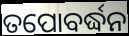
ତପୋବର୍ଦ୍ଧନ